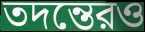
তদন্তেরও